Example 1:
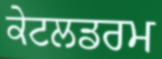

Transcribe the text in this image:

ਕੇਟਲਡਰਮ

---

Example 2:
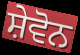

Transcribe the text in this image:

ਸ਼ੇਵੋਨ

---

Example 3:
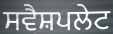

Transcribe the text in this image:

ਸਵੈਸ਼ਪਲੇਟ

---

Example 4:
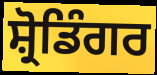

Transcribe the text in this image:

ਸ਼੍ਰੋਡਿੰਗਰ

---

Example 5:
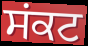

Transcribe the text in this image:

ਸਂਕਟ